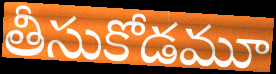
తీసుకోడమూ